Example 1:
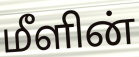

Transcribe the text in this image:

மீளின்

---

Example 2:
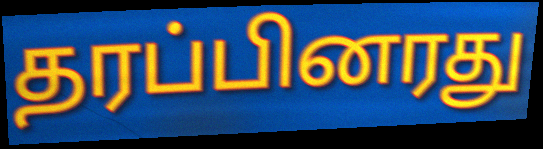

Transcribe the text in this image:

தரப்பினரது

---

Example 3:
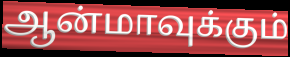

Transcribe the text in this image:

ஆன்மாவுக்கும்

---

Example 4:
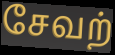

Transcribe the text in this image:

சேவற்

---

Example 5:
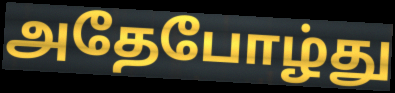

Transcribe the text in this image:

அதேபோழ்து